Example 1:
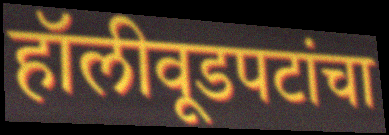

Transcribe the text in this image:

हॉलीवूडपटांचा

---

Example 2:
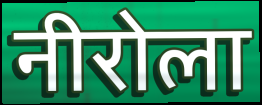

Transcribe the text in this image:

नीरोला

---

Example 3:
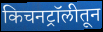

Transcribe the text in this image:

किचनट्रॉलीतून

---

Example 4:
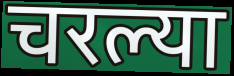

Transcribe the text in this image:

चरल्या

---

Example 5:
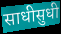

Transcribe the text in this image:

साधीसुधी